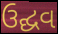
ઉદ્ઘવ